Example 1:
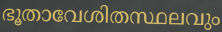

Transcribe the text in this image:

ഭൂതാവേശിതസ്ഥലവും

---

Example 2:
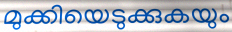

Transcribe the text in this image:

മുക്കിയെടുക്കുകയും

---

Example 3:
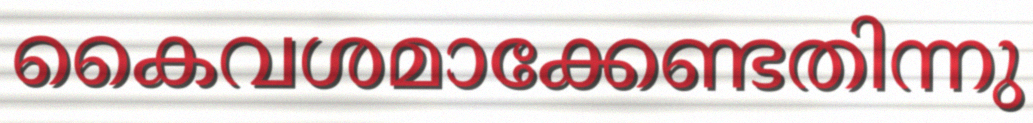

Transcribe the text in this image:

കൈവശമാക്കേണ്ടതിന്നു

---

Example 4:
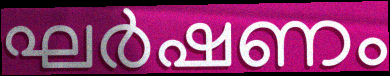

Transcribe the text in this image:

ഘർഷണം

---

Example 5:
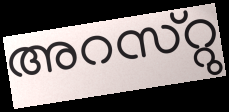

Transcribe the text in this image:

അറസ്‌റ്റു